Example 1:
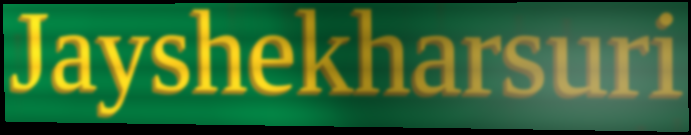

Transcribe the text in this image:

Jayshekharsuri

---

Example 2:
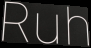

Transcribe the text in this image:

Ruh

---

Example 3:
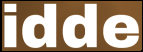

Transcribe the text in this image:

idde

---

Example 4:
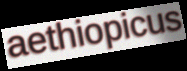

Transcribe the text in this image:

aethiopicus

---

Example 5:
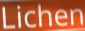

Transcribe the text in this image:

Lichen